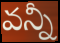
వన్నీ